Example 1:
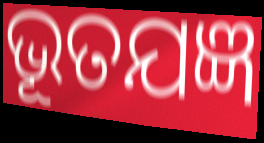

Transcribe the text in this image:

ଭୂତଯଜ୍ଞ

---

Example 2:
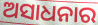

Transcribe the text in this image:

ଅସାଧନାର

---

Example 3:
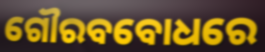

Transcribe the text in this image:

ଗୌରବବୋଧରେ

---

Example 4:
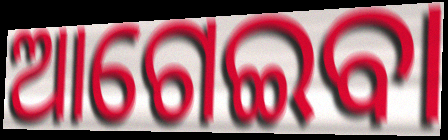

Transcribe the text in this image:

ଆଗେଇବା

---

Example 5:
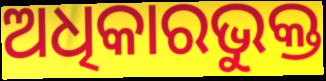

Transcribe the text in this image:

ଅଧିକାରଭୁକ୍ତ